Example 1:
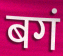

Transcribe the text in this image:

बगं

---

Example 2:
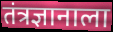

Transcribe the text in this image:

तंत्रज्ञानाला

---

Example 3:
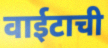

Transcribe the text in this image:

वाईटाची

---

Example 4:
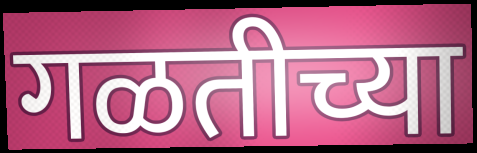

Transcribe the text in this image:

गळतीच्या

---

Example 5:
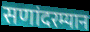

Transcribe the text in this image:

सणांदरम्यान